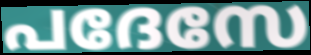
പദേസേ